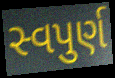
સ્વપુર્ણ